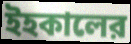
ইহকালের